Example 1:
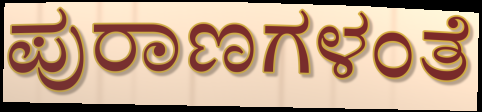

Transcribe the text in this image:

ಪುರಾಣಗಳಂತೆ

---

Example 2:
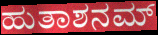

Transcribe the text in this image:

ಹುತಾಶನಮ್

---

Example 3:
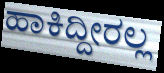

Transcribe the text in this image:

ಹಾಕಿದ್ದೀರಲ್ಲ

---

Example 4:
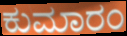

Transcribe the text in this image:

ಕುಮಾರಂ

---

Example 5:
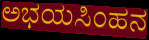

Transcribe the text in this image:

ಅಭಯಸಿಂಹನ